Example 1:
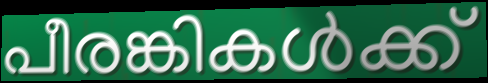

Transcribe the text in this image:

പീരങ്കികൾക്ക്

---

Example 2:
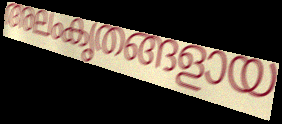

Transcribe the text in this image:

അലംകൃതങ്ങളായ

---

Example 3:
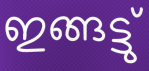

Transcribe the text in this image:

ഇങ്ങട്ടു്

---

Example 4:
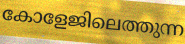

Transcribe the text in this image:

കോളേജിലെത്തുന്ന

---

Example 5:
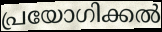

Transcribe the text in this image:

പ്രയോഗിക്കൽ